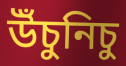
উঁচুনিচু